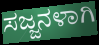
ಸಜ್ಜನಳಾಗಿ